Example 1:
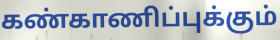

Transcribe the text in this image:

கண்காணிப்புக்கும்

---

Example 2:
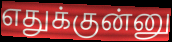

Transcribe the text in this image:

எதுக்குன்னு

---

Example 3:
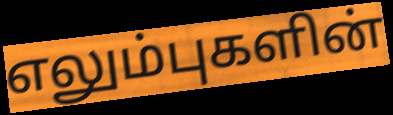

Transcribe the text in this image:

எலும்புகளின்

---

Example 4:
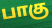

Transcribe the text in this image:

பாகு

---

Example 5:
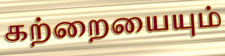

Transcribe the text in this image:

கற்றையையும்